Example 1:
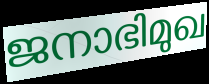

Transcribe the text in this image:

ജനാഭിമുഖ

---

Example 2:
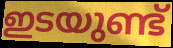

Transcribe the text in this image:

ഇടയുണ്ട്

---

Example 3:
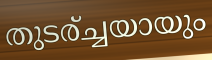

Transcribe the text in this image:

തുടര്ച്ചയായും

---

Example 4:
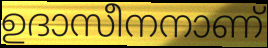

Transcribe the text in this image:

ഉദാസീനനാണ്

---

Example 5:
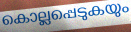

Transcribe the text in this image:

കൊല്ലപ്പെടുകയും